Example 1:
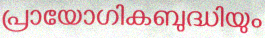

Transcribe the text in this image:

പ്രായോഗികബുദ്ധിയും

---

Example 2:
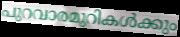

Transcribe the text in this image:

പുറവാരമുറികൾക്കും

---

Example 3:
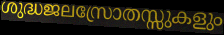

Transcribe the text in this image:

ശുദ്ധജലസ്രോതസ്സുകളും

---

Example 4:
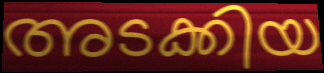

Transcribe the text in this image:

അടക്കിയ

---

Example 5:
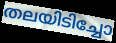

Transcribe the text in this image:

തലയിടിച്ചോ